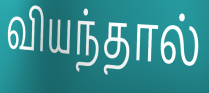
வியந்தால்